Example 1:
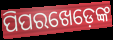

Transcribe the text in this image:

ପିପରଖେଡ଼େଙ୍କ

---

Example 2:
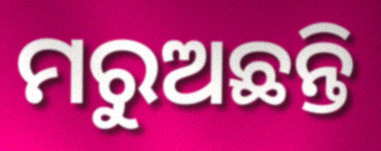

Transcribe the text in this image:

ମରୁଅଛନ୍ତି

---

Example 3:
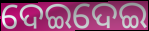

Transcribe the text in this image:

ଦେଇଦେଇ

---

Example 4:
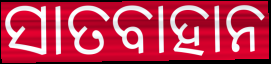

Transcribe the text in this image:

ସାତବାହାନ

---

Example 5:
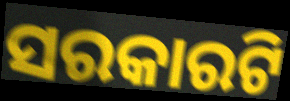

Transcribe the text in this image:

ସରକାରଟି